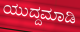
ಯುದ್ದಮಾಡಿ